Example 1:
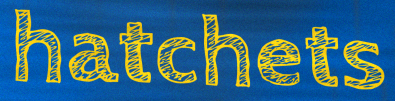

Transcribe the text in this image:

hatchets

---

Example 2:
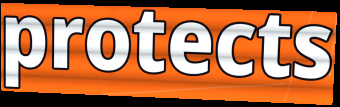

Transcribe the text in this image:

protects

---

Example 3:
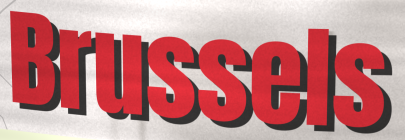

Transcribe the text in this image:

Brussels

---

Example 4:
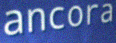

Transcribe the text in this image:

ancora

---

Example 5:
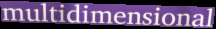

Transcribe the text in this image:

multidimensional